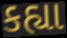
કહ્યા